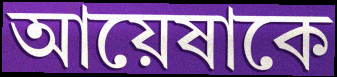
আয়েষাকে